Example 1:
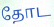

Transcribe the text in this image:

தோட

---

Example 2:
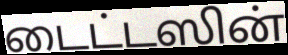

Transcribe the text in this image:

டைட்டஸின்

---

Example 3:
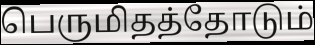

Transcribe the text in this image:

பெருமிதத்தோடும்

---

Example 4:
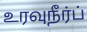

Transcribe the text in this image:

உரவுநீர்ப்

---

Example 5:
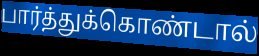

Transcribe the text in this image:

பார்த்துக்கொண்டால்